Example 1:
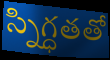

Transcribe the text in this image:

స్నిగ్ధతతో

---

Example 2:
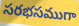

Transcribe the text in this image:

సరభసముగా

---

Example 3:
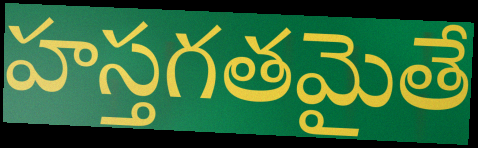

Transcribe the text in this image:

హస్తగతమైతే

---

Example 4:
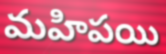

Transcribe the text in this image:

మహిపయి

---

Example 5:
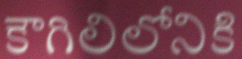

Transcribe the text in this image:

కౌగిలిలోనికి